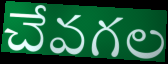
చేవగల